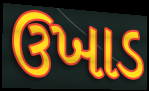
ઉખાડ